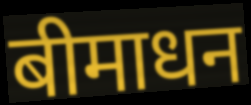
बीमाधन